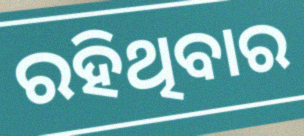
ରହିଥିବାର